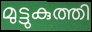
മുട്ടുകുത്തി